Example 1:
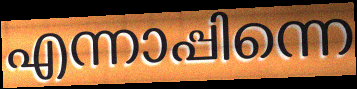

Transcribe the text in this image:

എന്നാപ്പിന്നെ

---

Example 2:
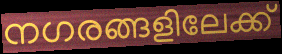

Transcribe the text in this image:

നഗരങ്ങളിലേക്ക്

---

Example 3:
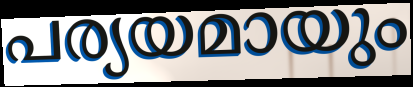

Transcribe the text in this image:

പര്യയമായും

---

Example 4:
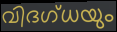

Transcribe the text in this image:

വിദഗ്ധയും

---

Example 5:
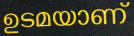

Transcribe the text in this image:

ഉടമയാണ്